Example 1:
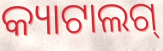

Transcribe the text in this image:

କ୍ୟାଟାଲଗ୍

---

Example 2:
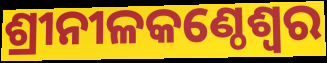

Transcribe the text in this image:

ଶ୍ରୀନୀଳକଣ୍ଠେଶ୍ଵର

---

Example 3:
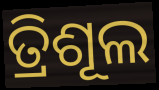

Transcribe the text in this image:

ତ୍ରିଶୂଲ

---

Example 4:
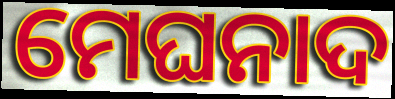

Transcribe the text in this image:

ମେଘନାଦ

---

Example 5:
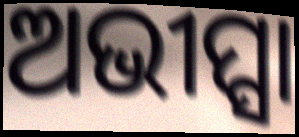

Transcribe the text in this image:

ଅଭୀପ୍ସା